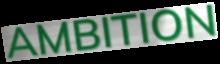
AMBITION